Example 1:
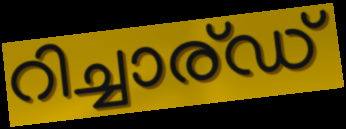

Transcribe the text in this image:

റിച്ചാര്ഡ്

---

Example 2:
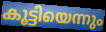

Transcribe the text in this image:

കൂട്ടിയെന്നും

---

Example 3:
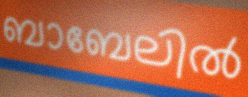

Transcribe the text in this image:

ബാബേലിൽ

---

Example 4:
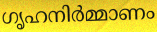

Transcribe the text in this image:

ഗൃഹനിർമ്മാണം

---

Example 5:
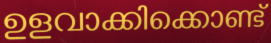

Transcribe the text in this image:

ഉളവാക്കിക്കൊണ്ട്